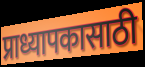
प्राध्यापकासाठी